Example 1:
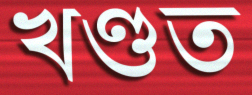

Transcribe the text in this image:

খণ্ডত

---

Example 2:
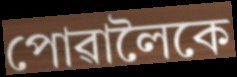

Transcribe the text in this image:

পোৱালৈকে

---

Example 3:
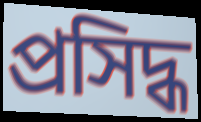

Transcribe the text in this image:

প্ৰসিদ্ধ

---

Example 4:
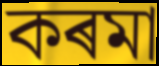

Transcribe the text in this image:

কৰমা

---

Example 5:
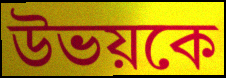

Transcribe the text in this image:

উভয়কে